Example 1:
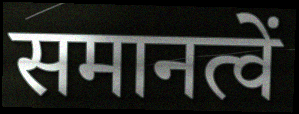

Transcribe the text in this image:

समानत्वें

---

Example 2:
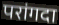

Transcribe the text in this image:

परांगदा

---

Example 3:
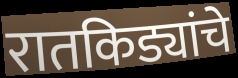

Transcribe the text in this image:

रातकिड्यांचे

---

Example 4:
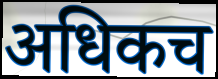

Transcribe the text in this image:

अधिकच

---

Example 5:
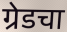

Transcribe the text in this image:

ग्रेडचा